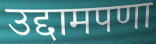
उद्दामपणा